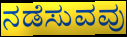
ನಡೆಸುವವು